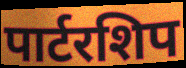
पार्टरशिप